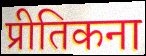
प्रीतिकना